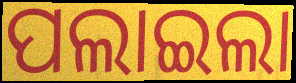
ପଲାଇଲା